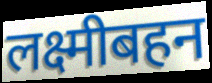
लक्ष्मीबहन